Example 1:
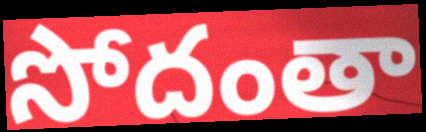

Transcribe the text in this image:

సోదంతా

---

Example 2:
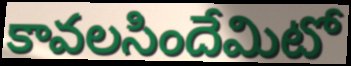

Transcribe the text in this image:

కావలసిందేమిటో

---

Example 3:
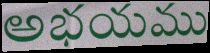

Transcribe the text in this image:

అభయము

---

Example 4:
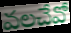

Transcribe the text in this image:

వలచేవో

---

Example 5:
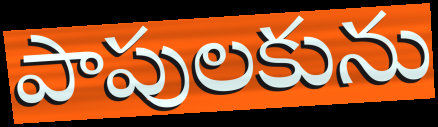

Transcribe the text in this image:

పాపులకును